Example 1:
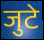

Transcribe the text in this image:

जुटे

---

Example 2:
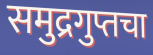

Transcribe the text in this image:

समुद्रगुप्तचा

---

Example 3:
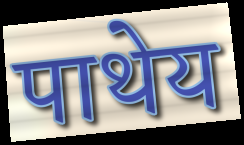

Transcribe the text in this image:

पाथेय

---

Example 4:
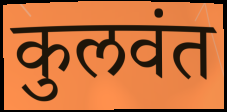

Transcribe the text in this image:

कुलवंत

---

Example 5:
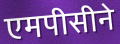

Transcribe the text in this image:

एमपीसीने